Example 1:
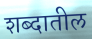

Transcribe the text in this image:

शब्दातील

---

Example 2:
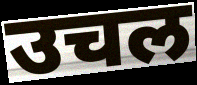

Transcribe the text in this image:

उचल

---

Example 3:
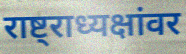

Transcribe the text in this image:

राष्ट्राध्यक्षांवर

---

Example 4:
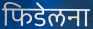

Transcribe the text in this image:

फिडेलना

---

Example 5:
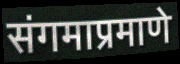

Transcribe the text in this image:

संगमाप्रमाणे